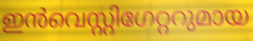
ഇൻവെസ്റ്റിഗേറ്ററുമായ